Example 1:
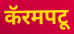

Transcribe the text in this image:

कॅरमपटू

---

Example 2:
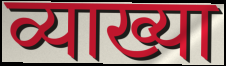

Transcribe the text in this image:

व्याख्या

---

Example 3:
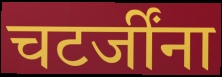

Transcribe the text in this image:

चटर्जींना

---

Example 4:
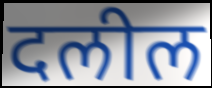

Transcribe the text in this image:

दलील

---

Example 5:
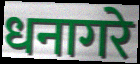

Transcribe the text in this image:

धनागरे